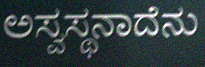
ಅಸ್ವಸ್ಥನಾದೆನು